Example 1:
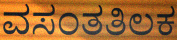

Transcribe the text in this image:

ವಸಂತತಿಲಕ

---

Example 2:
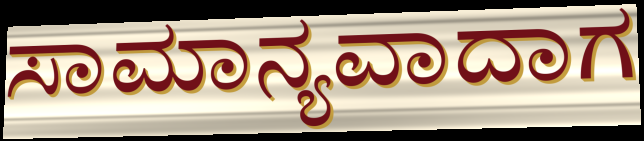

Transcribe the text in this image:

ಸಾಮಾನ್ಯವಾದಾಗ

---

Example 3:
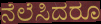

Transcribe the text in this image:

ನೆಲೆಸಿದರೂ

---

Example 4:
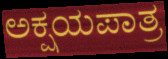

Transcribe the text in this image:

ಅಕ್ಷಯಪಾತ್ರ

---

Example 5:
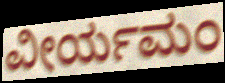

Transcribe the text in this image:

ವೀರ್ಯಮಂ